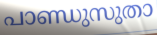
പാണ്ഡുസുതാ